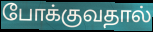
போக்குவதால்